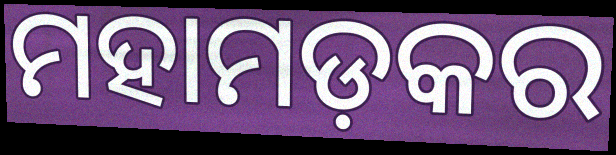
ମହାମଡ଼କର